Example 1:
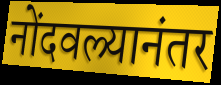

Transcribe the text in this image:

नोंदवल्यानंतर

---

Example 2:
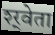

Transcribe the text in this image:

श्र्वेता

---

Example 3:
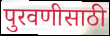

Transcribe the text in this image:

पुरवणीसाठी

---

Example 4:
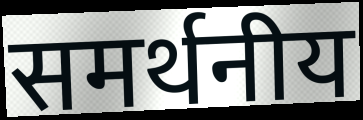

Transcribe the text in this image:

समर्थनीय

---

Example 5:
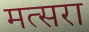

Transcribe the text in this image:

मत्सरा